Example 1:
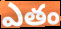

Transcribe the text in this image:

ఎతం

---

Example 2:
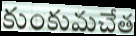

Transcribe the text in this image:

కుంకుమచేత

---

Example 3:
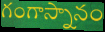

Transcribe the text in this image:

గంగాస్నానం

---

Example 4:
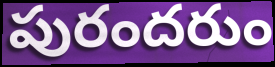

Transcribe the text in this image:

పురందరుం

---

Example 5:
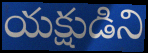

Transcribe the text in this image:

యక్షుడిని